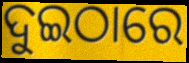
ଦୁଇଠାରେ